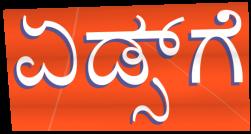
ಏಡ್ಸ್‌ಗೆ